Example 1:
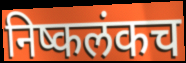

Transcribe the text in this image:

निष्कलंकच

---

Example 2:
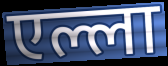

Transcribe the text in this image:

एल्ला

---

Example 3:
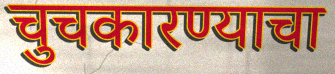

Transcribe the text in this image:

चुचकारण्याचा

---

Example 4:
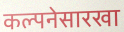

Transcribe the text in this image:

कल्पनेसारखा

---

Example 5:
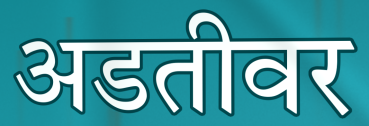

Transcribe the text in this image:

अडतीवर